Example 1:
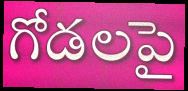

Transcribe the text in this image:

గోడలపై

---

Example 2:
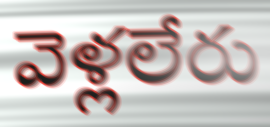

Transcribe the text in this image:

వెళ్లలేరు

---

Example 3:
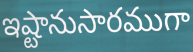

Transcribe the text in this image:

ఇష్టానుసారముగా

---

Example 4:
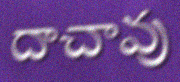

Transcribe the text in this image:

దాచావు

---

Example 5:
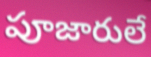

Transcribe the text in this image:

పూజారులే